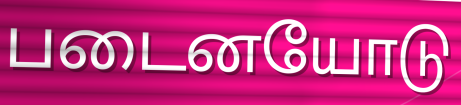
படைனயோடு